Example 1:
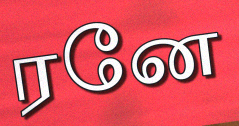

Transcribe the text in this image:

ரனே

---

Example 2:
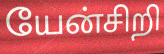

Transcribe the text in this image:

யேன்சிறி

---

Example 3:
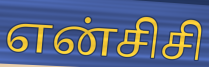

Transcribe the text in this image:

என்சிசி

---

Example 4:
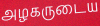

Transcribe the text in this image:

அழகருடைய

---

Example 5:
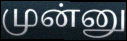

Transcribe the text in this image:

முன்னு